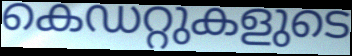
കെഡറ്റുകളുടെ